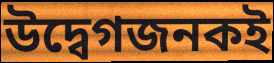
উদ্বেগজনকই